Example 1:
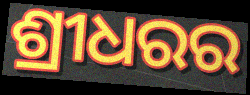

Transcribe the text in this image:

ଶ୍ରୀଧରର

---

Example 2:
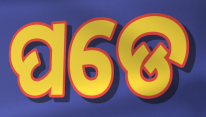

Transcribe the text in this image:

ପଡେ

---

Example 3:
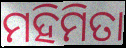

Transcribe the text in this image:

ମହିମିତା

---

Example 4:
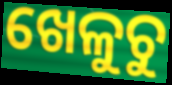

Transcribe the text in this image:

ଖେଳୁଚୁ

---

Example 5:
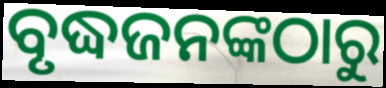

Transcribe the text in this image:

ବୃଦ୍ଧଜନଙ୍କଠାରୁ